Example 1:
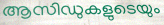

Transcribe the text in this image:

ആസിഡുകളുടെയും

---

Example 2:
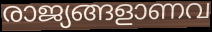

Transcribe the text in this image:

രാജ്യങ്ങളാണവ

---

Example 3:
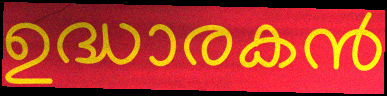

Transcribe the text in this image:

ഉദ്ധാരകൻ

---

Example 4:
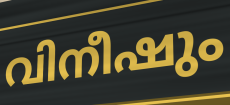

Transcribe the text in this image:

വിനീഷും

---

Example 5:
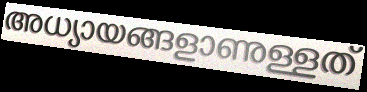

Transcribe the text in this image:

അധ്യായങ്ങളാണുള്ളത്